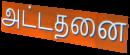
அட்டதனை